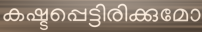
കഷ്ടപ്പെട്ടിരിക്കുമോ